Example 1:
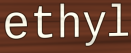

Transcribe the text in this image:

ethyl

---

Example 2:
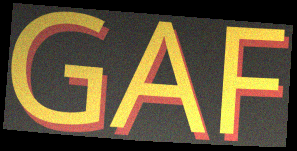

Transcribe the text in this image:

GAF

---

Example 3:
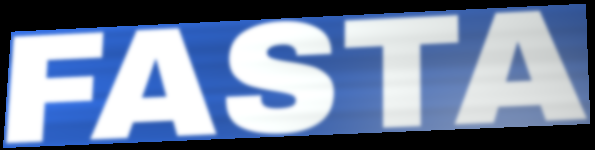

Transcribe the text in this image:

FASTA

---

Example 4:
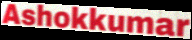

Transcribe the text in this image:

Ashokkumar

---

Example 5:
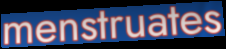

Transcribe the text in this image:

menstruates